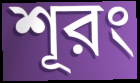
শূরং